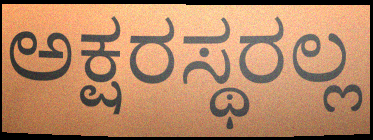
ಅಕ್ಷರಸ್ಥರಲ್ಲ